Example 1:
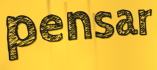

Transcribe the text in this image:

pensar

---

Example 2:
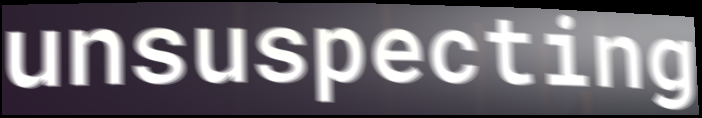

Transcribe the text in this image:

unsuspecting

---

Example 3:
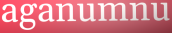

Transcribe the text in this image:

aganumnu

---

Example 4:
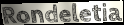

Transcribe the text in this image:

Rondeletia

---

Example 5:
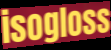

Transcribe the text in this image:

isogloss